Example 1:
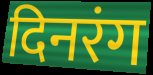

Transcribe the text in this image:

दिनरंग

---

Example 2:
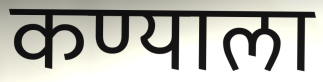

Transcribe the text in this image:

कण्याला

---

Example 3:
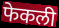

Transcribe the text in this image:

फेकली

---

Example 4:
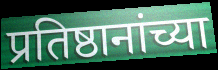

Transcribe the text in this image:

प्रतिष्ठानांच्या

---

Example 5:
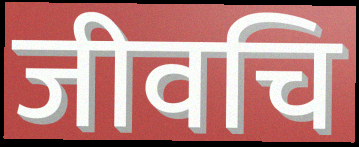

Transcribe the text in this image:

जीवचि